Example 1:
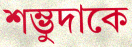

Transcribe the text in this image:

শম্ভুদাকে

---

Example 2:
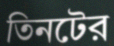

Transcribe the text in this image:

তিনটের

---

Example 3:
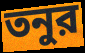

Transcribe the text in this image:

তনুর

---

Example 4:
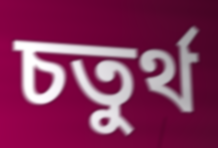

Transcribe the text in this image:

চতুর্থ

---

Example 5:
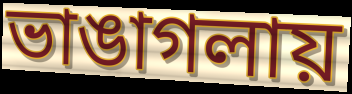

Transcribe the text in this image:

ভাঙাগলায়